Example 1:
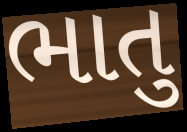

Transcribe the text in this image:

ભાતુ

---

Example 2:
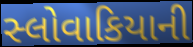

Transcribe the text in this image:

સ્લોવાકિયાની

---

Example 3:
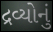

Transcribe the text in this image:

દ્રવ્યોનું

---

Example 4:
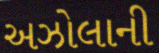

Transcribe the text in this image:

અઝોલાની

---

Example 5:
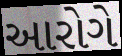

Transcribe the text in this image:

આરોગે